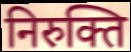
निरुक्ति